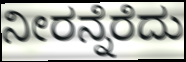
ನೀರನ್ನೆರೆದು